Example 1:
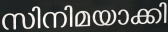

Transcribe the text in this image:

സിനിമയാക്കി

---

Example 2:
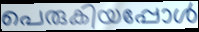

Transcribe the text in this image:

പെരുകിയപ്പോൾ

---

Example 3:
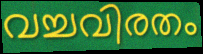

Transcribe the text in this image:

വച്ചവിരതം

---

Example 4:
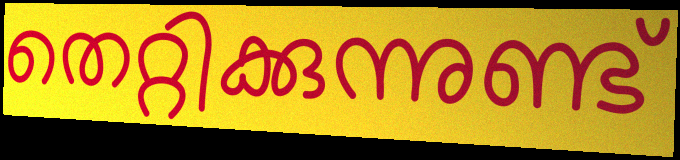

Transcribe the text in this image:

തെറ്റിക്കുന്നുണ്ട്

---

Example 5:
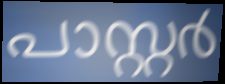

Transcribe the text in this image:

പാസ്റ്റർ